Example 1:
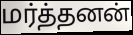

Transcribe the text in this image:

மர்த்தனன்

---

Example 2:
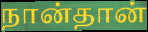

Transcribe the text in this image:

நான்தான்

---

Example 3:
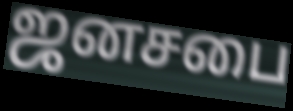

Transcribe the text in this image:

ஜனசபை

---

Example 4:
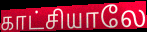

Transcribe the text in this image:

காட்சியாலே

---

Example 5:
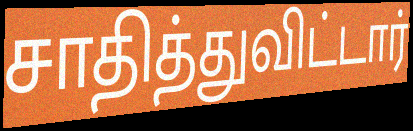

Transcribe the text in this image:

சாதித்துவிட்டார்